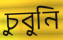
চুবুনি